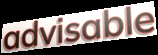
advisable